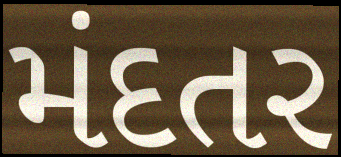
મંદતર